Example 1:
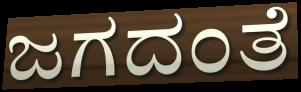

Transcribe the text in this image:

ಜಗದಂತೆ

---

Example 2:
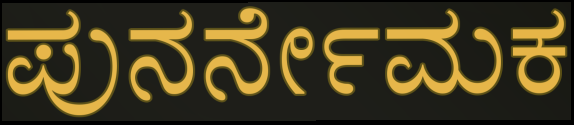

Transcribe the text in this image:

ಪುನರ್ನೇಮಕ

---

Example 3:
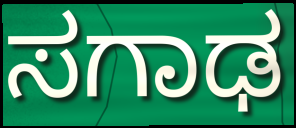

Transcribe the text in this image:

ಸಗಾಢ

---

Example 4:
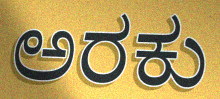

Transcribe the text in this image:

ಅರಕು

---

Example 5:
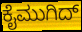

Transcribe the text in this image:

ಕೈಮುಗಿದ್